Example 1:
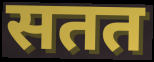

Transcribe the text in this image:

सतत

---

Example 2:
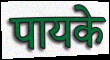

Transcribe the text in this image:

पायके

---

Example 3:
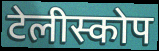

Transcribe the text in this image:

टेलीस्कोप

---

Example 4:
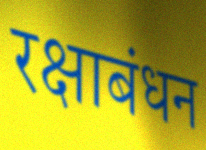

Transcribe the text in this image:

रक्षाबंधन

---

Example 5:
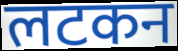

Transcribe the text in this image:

लटकन